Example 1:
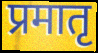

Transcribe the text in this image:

प्रमातृ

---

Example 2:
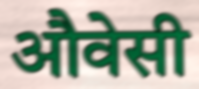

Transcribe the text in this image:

औवेसी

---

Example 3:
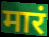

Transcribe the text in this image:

मारं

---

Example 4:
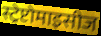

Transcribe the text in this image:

स्ट्रेप्टोमाइसीज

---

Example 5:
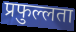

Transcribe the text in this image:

प्रफुल्लता